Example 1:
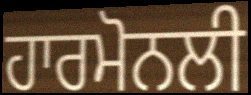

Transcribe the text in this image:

ਹਾਰਮੋਨਲੀ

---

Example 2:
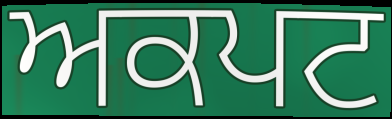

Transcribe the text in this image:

ਅਕਪਟ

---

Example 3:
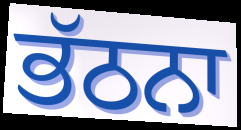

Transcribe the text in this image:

ਭੱਠਨਾ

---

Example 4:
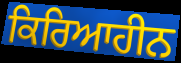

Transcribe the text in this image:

ਕਿਰਿਆਹੀਨ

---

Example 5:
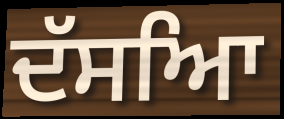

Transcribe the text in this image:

ਦੱਸਆਿ